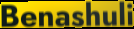
Benashuli